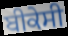
ਬੀਕੇਸੀ